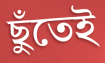
ছুঁতেই